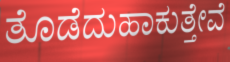
ತೊಡೆದುಹಾಕುತ್ತೇವೆ